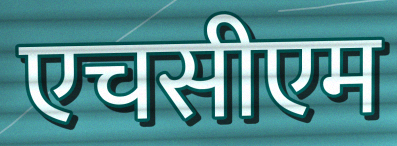
एचसीएम